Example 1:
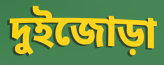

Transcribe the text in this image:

দুইজোড়া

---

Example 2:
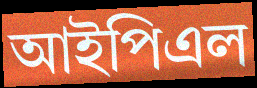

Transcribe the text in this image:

আইপিএল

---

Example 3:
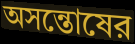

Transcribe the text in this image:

অসন্তোষের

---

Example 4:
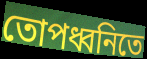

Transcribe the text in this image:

তোপধ্বনিতে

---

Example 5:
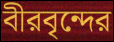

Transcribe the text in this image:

বীরবৃন্দের